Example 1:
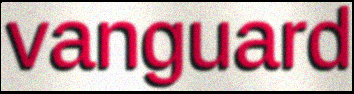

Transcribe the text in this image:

vanguard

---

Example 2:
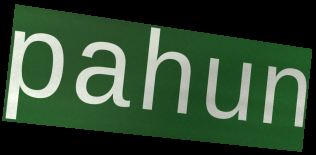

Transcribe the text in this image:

pahun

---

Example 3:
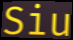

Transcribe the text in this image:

Siu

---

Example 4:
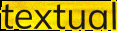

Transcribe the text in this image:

textual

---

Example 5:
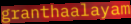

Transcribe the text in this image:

granthaalayam